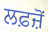
ਲਫ਼ਜ਼ੋਂ